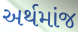
અર્થમાંજ